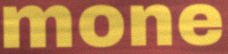
mone